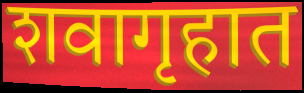
शवागृहात